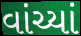
વાંચ્યાં